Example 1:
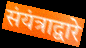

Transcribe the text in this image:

संयंत्राद्वारे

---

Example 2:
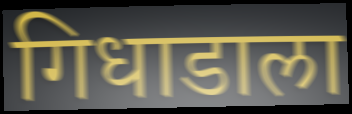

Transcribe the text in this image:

गिधाडाला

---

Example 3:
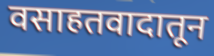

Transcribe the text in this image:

वसाहतवादातून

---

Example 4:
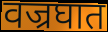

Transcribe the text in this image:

वज्रघात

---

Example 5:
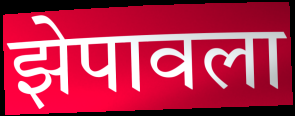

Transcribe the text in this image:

झेपावला